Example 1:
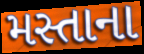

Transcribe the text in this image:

મસ્તાના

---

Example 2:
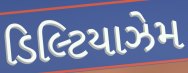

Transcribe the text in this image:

ડિલ્ટિયાઝેમ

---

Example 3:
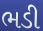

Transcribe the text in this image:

ભડી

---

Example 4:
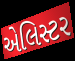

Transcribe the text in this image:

એલિસ્ટર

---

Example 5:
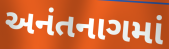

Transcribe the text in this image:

અનંતનાગમાં